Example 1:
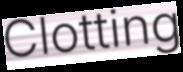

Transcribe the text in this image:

Clotting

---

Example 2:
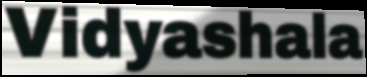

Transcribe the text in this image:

Vidyashala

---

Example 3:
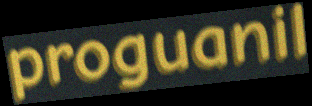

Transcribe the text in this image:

proguanil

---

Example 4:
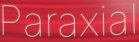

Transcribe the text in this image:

Paraxial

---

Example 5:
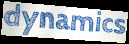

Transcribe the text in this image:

dynamics